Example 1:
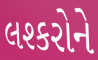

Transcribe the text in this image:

લશ્કરોને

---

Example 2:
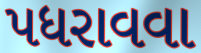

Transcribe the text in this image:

પધરાવવા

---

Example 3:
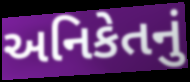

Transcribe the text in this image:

અનિકેતનું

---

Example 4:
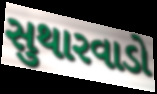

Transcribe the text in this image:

સુથારવાડો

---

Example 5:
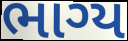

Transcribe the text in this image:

ભાગ્ય